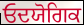
ਓਦਯੋਗਿਕ